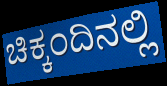
ಚಿಕ್ಕಂದಿನಲ್ಲಿ